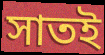
সাতই